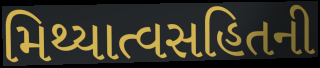
મિથ્યાત્વસહિતની